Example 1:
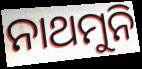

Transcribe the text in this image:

ନାଥମୁନି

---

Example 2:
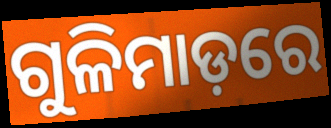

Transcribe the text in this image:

ଗୁଳିମାଡ଼ରେ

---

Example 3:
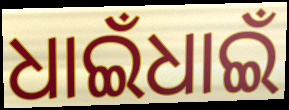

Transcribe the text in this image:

ଧାଇଁଧାଇଁ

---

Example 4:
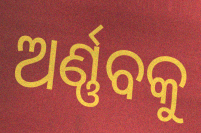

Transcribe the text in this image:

ଅର୍ଣ୍ଣବକୁ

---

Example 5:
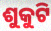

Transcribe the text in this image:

ଶୁକୁଟି